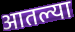
आतल्या